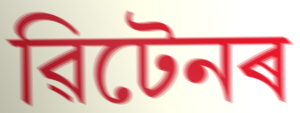
ৱিটেনৰ